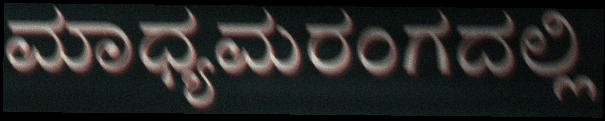
ಮಾಧ್ಯಮರಂಗದಲ್ಲಿ